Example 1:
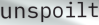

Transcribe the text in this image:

unspoilt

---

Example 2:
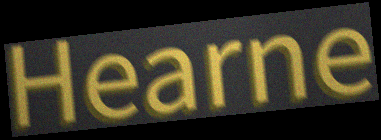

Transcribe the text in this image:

Hearne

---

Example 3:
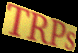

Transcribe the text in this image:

TRPs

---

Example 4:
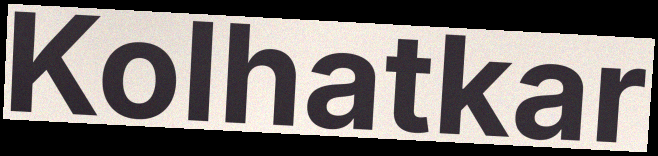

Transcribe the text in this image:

Kolhatkar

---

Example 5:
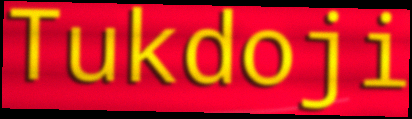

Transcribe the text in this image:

Tukdoji